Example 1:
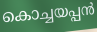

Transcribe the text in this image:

കൊച്ചയപ്പൻ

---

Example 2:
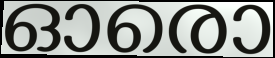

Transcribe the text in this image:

ഓരൊ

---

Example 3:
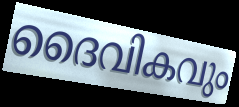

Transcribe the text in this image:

ദൈവികവും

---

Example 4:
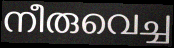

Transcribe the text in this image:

നീരുവെച്ച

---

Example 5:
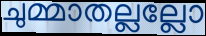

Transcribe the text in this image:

ചുമ്മാതല്ലല്ലോ